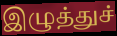
இழுத்துச்